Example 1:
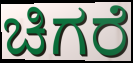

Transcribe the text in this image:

ಚಿಗರೆ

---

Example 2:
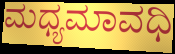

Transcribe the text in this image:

ಮಧ್ಯಮಾವಧಿ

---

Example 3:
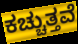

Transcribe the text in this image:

ಕಚ್ಚುತ್ತವೆ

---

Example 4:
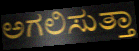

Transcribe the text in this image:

ಅಗಲಿಸುತ್ತಾ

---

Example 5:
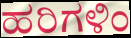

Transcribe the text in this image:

ಹರಿಗಳಿಂ